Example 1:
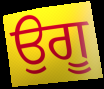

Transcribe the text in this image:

ਉਗੂ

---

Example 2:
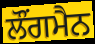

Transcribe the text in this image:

ਲੌਂਗਮੈਨ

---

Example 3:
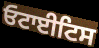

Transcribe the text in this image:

ਓਟਾਈਟਿਸ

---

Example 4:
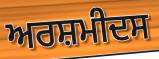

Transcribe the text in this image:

ਅਰਸ਼ਮੀਦਸ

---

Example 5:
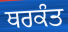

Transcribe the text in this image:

ਥਰਕੰਤ